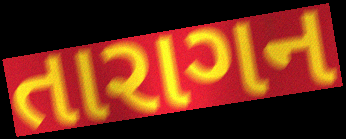
તારાગન